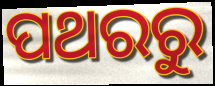
ପଥରରୁ